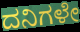
ದನಿಗಳೇ